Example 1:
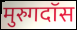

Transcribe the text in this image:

मुरुगदॉस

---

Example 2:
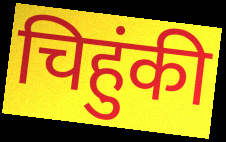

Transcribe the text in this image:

चिहुंकी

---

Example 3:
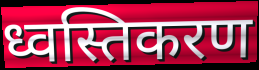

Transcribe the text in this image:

ध्वस्तिकरण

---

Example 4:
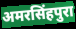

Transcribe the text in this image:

अमरसिंहपुरा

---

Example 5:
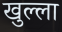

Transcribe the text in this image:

खुल्ला